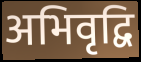
अभिवृद्वि